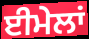
ਈਮੇਲਾਂ